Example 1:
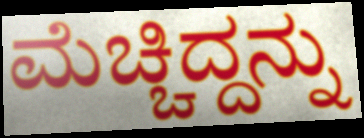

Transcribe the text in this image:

ಮೆಚ್ಚಿದ್ದನ್ನು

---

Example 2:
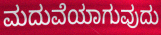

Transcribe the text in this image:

ಮದುವೆಯಾಗುವುದು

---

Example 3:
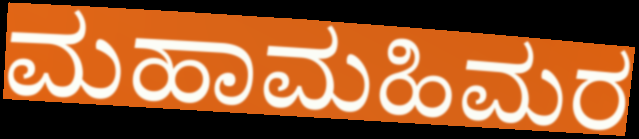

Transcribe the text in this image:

ಮಹಾಮಹಿಮರ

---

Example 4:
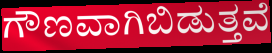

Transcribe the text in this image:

ಗೌಣವಾಗಿಬಿಡುತ್ತವೆ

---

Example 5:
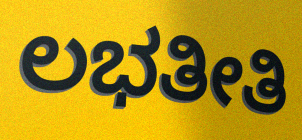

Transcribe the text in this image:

ಲಭತೀತಿ